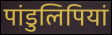
पांडुलिपियां